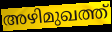
അഴിമുഖത്ത്